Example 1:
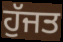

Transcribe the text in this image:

ਹੁੱਜਤ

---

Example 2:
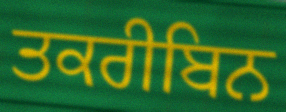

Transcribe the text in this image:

ਤਕਰੀਬਿਨ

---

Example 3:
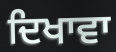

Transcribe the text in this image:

ਦਿਖਾਵਾ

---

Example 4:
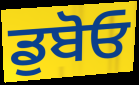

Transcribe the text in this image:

ਡੁਬੋਓ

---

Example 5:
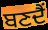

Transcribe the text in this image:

ਬਣਦੈਂ